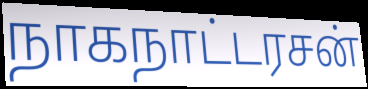
நாகநாட்டரசன்